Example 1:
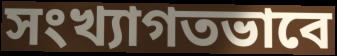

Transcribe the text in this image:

সংখ্যাগতভাবে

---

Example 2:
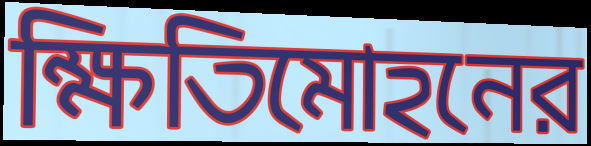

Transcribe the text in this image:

ক্ষিতিমোহনের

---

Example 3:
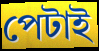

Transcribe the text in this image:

পেটাই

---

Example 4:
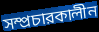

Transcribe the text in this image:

সম্প্রচারকালীন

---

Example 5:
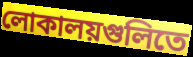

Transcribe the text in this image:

লোকালয়গুলিতে